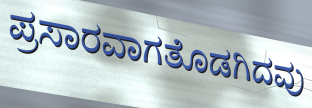
ಪ್ರಸಾರವಾಗತೊಡಗಿದವು